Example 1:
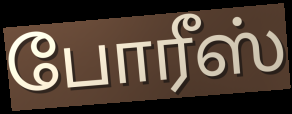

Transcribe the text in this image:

போரீஸ்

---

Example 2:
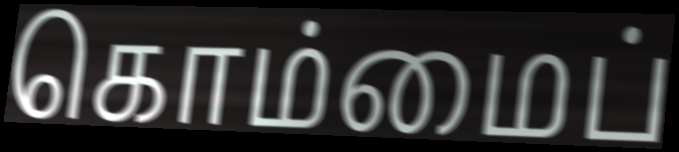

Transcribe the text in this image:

கொம்மைப்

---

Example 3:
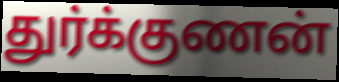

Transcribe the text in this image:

துர்க்குணன்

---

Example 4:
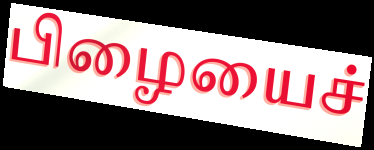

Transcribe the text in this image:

பிழையைச்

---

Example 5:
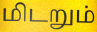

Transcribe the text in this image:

மிடறும்